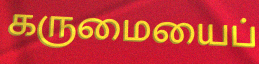
கருமையைப்